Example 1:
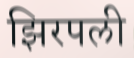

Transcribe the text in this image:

झिरपली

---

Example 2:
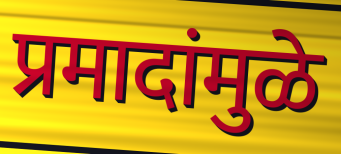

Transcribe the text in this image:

प्रमादांमुळे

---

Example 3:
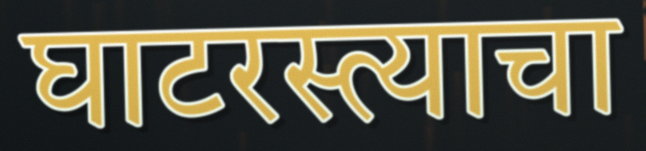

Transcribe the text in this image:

घाटरस्त्याचा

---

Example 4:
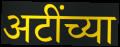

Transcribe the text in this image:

अटींच्या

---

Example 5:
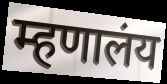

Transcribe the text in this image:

म्हणालंय